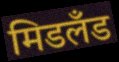
मिडलँड